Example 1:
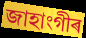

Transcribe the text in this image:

জাহাংগীৰ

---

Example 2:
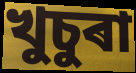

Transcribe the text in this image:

খুচুৰা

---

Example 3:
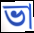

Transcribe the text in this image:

ভা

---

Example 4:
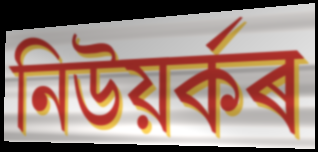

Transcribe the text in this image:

নিউয়ৰ্কৰ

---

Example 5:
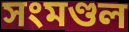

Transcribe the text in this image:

সংমণ্ডল